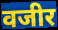
वजीर